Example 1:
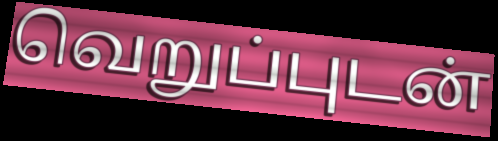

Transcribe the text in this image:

வெறுப்புடன்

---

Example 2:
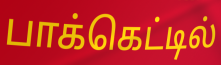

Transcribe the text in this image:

பாக்கெட்டில்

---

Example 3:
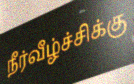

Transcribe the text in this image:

நீர்வீழ்ச்சிக்கு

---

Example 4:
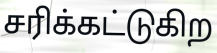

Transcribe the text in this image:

சரிக்கட்டுகிற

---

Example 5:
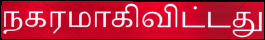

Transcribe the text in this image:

நகரமாகிவிட்டது